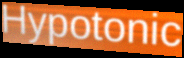
Hypotonic